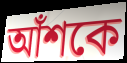
আঁশকে